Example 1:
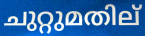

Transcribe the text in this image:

ചുറ്റുമതില്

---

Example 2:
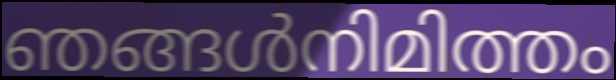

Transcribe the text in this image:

ഞങ്ങൾനിമിത്തം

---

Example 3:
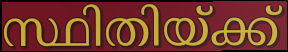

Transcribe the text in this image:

സ്ഥിതിയ്ക്ക്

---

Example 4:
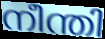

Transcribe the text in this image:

നീന്തി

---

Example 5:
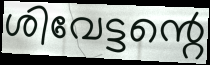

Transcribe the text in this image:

ശിവേട്ടന്റെ